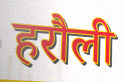
हरौली